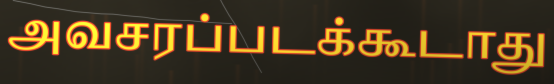
அவசரப்படக்கூடாது